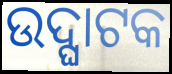
ଉଦ୍ଘାଟକ